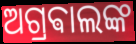
ଅଗ୍ରଵାଲଙ୍କ